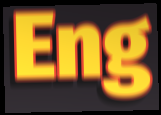
Eng